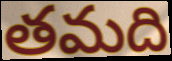
తమది